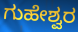
ಗುಹೇಶ್ವರ